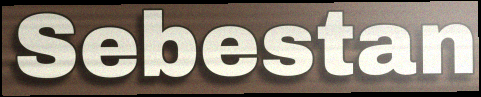
Sebestan